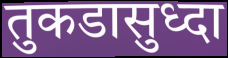
तुकडासुध्दा